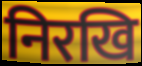
निरखि